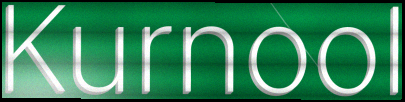
Kurnool